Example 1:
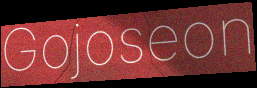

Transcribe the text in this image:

Gojoseon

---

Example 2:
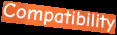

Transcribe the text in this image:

Compatibility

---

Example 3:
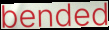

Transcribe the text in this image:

bended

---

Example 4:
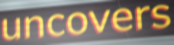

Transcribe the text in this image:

uncovers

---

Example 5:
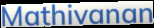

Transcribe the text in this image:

Mathivanan